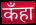
कँहा